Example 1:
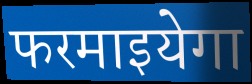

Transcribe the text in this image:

फरमाइयेगा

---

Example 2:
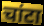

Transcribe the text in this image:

चांटा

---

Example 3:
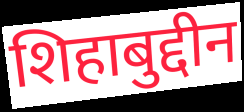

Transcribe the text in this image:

शिहाबुद्दीन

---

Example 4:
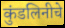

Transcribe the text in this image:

कुंडलिनीचे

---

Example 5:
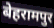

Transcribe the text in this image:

बेहरामपुर